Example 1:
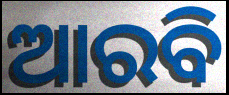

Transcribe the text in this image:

ଆରବି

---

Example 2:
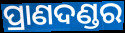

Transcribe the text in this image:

ପ୍ରାଣଦଣ୍ଡର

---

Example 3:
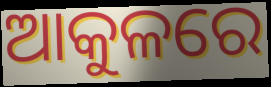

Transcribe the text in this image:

ଆକୁଳରେ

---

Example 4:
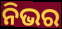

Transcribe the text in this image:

ନିଭର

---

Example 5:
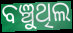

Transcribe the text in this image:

ବଞ୍ଚୁଥିଲ